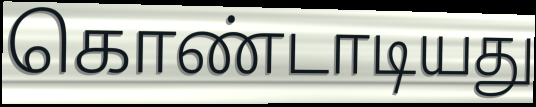
கொண்டாடியது